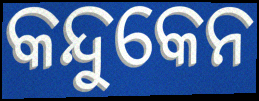
କନ୍ଦୁକେନ